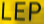
LEP